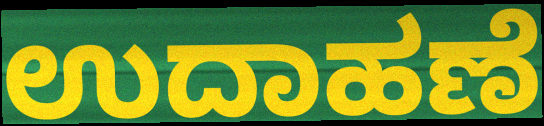
ಉದಾಹಣೆ